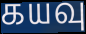
கயவு